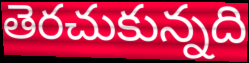
తెరచుకున్నది